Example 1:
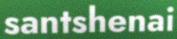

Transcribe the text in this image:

santshenai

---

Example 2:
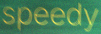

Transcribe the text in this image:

speedy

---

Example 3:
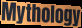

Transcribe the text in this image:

Mythology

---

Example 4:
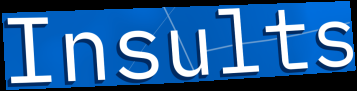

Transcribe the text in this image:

Insults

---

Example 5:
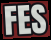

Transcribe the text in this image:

FES